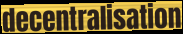
decentralisation